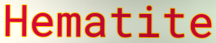
Hematite